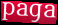
paga